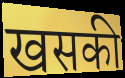
खसकी